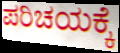
ಪರಿಚಯಕ್ಕೆ